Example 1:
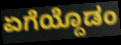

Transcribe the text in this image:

ಏಗೆಯ್ದೊಡಂ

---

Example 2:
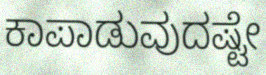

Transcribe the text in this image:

ಕಾಪಾಡುವುದಷ್ಟೇ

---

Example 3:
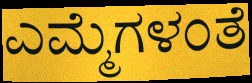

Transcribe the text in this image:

ಎಮ್ಮೆಗಳಂತೆ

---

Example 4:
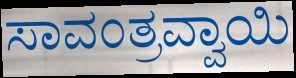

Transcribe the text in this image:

ಸಾವಂತ್ರವ್ವಾಯಿ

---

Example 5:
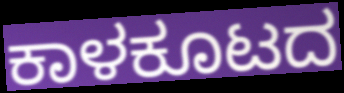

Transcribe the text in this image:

ಕಾಳಕೂಟದ